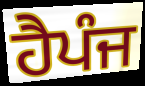
ਹੈਪੰਜ